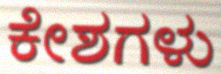
ಕೇಶಗಳು